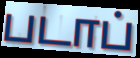
படாப்